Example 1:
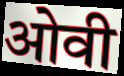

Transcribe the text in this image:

ओवी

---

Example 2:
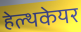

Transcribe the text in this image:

हेल्थकेयर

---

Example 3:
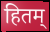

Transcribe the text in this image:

हितम्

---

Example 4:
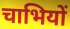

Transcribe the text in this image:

चाभियों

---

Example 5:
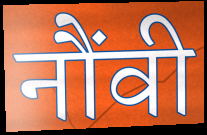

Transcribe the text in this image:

नौंवी